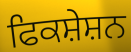
ਫਿਕਸ਼ੇਸ਼ਨ